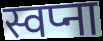
स्‍वप्‍ना